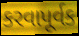
કરવાપૂર્વક